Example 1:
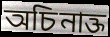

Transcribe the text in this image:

অচিনাক্ত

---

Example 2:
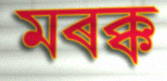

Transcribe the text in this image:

মৰক্ক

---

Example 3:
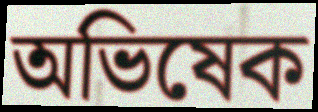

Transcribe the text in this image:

অভিষেক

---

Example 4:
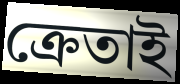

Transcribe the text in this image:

ক্ৰেতাই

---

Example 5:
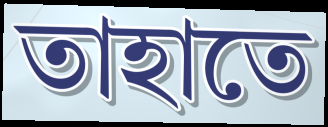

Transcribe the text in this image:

তাহাতে